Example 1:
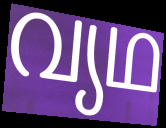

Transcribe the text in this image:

വ്യഥ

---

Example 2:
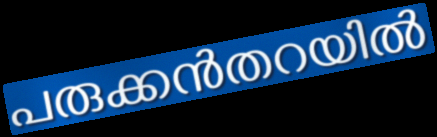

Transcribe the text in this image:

പരുക്കൻതറയിൽ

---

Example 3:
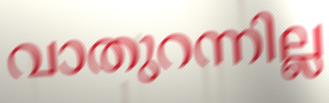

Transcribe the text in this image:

വാതുറന്നില്ല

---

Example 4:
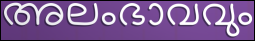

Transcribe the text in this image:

അലംഭാവവും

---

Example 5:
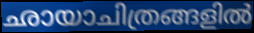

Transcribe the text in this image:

ഛായാചിത്രങ്ങളിൽ